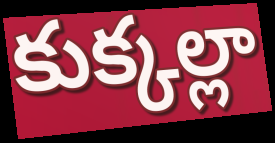
కుక్కల్లా